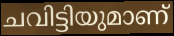
ചവിട്ടിയുമാണ്